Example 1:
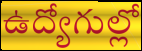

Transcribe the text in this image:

ఉద్యోగుల్లో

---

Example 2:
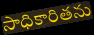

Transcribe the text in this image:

సాధికారితను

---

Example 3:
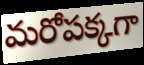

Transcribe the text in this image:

మరోపక్కగా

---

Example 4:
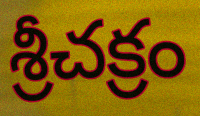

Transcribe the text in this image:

శ్రీచక్రం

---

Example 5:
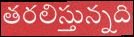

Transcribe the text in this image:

తరలిస్తున్నది